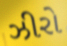
ઝીરો